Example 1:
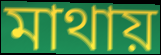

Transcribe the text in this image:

মাথায়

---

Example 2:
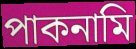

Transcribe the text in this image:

পাকনামি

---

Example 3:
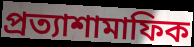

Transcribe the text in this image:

প্রত্যাশামাফিক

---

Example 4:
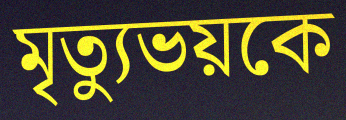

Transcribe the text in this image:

মৃত্যুভয়কে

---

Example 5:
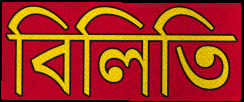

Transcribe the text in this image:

বিলিতি